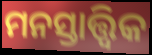
ମନସ୍ତାତ୍ତ୍ବିକ